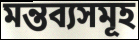
মন্তব্যসমূহ